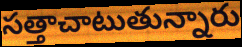
సత్తాచాటుతున్నారు